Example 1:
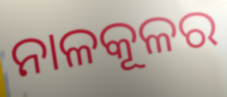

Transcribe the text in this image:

ନାଳକୂଳର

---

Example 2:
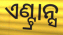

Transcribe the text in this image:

ଏଣ୍ଟ୍ରାନ୍ସ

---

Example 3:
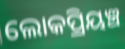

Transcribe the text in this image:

ଲୋକପ୍ରିୟଞ୍ଚ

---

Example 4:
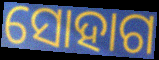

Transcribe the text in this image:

ସୋହାଗ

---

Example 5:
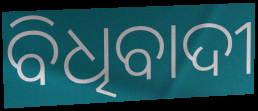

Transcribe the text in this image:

ବିଧିବାଦୀ